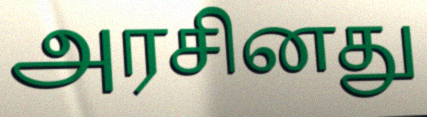
அரசினது